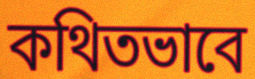
কথিতভাবে